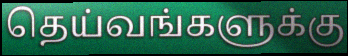
தெய்வங்களுக்கு